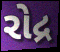
રોદ્ર